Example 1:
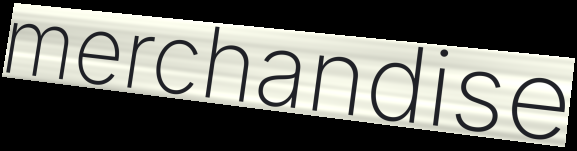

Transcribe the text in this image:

merchandise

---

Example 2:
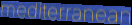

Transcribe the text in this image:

mediterranean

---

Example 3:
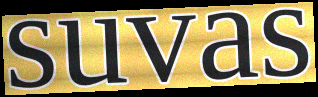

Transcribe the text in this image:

suvas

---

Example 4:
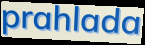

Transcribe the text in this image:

prahlada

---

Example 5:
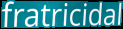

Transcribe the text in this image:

fratricidal